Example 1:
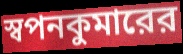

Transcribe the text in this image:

স্বপনকুমারের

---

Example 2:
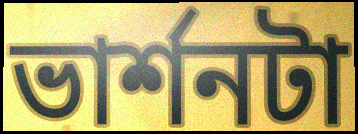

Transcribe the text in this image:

ভার্শনটা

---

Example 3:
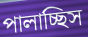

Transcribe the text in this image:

পালাচ্ছিস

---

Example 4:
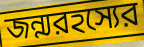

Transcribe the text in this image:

জন্মরহস্যের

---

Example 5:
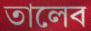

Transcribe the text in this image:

তালেব